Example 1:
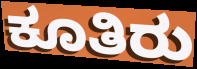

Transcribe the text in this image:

ಕೂತಿರು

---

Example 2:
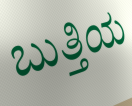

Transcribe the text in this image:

ಬುತ್ತಿಯ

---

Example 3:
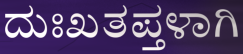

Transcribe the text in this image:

ದುಃಖತಪ್ತಳಾಗಿ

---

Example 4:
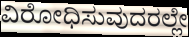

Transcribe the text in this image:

ವಿರೋಧಿಸುವುದರಲ್ಲೇ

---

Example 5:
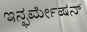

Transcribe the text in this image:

ಇನ್ಫರ್ಮೇಷನ್